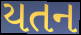
યતન